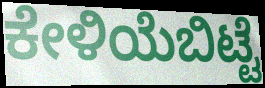
ಕೇಳಿಯೆಬಿಟ್ಟೆ